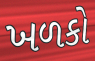
ખળકો